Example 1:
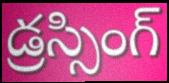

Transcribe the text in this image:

డ్రస్సింగ్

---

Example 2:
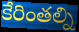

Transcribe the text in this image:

కేరింతల్ని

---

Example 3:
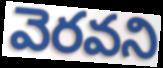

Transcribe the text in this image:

వెరవని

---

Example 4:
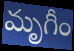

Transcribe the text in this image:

మృగీం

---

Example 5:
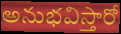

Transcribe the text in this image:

అనుభవిస్తారో